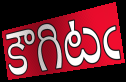
కౌగిటఁ